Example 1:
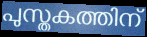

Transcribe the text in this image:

പുസ്തകത്തിന്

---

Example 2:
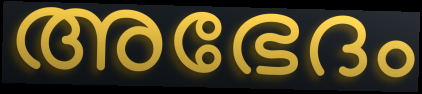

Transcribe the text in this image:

അഭേദം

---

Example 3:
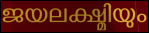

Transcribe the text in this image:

ജയലക്ഷ്മിയും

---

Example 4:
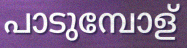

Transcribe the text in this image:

പാടുമ്പോള്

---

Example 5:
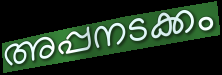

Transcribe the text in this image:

അപ്പനടക്കം